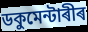
ডকুমেন্টাৰীৰ